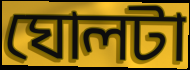
ঘোলটা